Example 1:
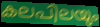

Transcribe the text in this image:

കലപിലയും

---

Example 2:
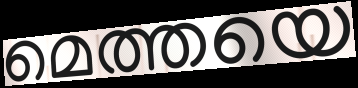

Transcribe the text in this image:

മെത്തയെ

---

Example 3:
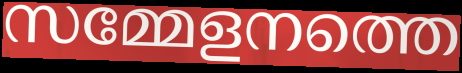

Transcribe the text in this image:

സമ്മേളനത്തെ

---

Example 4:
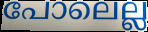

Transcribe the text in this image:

പോലെല്ല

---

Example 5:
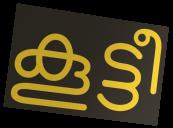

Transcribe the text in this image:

കൂട്ടീ